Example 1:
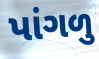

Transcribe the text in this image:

પાંગળુ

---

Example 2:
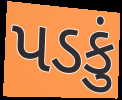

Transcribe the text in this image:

પડકું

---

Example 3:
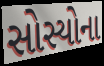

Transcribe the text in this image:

સોસ્યોના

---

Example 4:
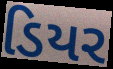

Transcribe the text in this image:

ડિયર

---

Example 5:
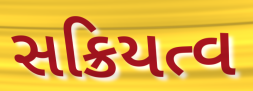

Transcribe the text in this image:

સક્રિયત્વ